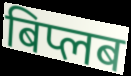
बिप्लब